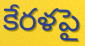
కేరళపై